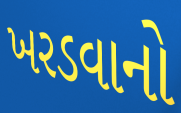
ખરડવાનો